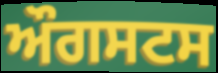
ਔਗਸਟਸ